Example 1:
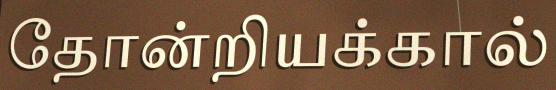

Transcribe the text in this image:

தோன்றியக்கால்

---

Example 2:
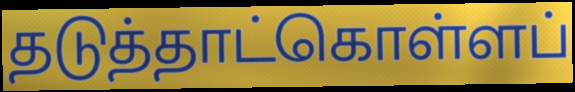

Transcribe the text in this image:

தடுத்தாட்கொள்ளப்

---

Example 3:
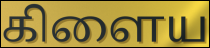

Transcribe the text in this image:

கிளைய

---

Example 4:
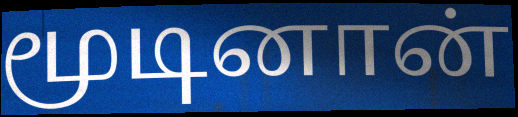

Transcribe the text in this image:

மூடினான்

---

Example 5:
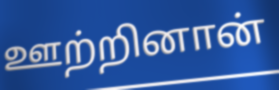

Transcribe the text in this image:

ஊற்றினான்